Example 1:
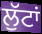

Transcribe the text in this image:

ਲੁੱਟਾਂ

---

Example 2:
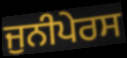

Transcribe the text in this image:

ਜੁਨੀਪੇਰਸ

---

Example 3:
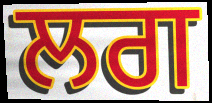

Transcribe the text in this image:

ਲਗ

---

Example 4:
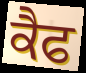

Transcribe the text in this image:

ਕੈਫ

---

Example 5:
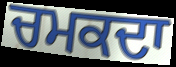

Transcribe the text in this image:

ਚਮਕਦਾ